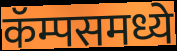
कॅम्पसमध्ये